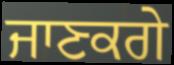
ਜਾਣਕਗੇ